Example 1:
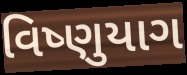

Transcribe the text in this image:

વિષ્ણુયાગ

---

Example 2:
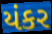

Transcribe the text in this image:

યંકર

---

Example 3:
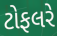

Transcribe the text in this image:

ટોફલરે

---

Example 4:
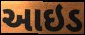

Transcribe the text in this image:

આઇડ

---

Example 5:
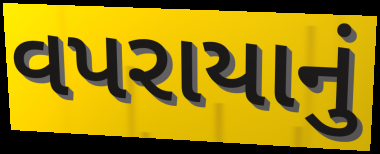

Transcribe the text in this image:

વપરાયાનું